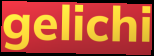
gelichi